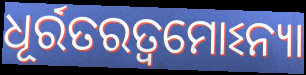
ଧୂର୍ରତରତ୍ୱମୋଽନ୍ୟା